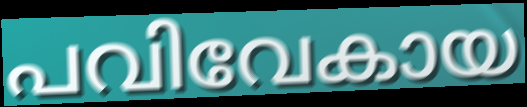
പവിവേകായ